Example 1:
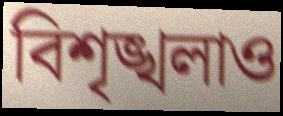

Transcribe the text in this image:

বিশৃঙ্খলাও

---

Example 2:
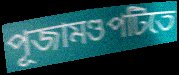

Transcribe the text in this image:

পূজামণ্ডপটিতে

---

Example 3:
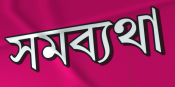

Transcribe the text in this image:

সমব্যথা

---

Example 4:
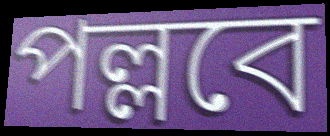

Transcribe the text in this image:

পল্লবে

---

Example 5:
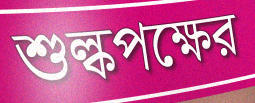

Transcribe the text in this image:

শুল্কপক্ষের